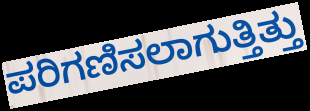
ಪರಿಗಣಿಸಲಾಗುತ್ತಿತ್ತು